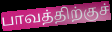
பாவத்திற்குச்